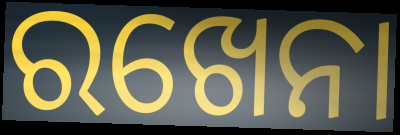
ରଖେନା